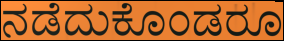
ನಡೆದುಕೊಂಡರೂ